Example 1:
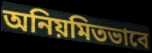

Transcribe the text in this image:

অনিয়মিতভাবে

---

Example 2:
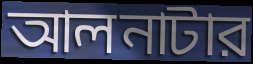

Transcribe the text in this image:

আলনাটার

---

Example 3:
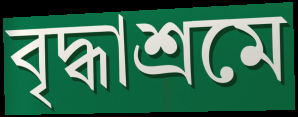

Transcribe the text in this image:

বৃদ্ধাশ্রমে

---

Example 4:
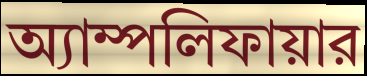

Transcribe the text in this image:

অ্যাম্পলিফায়ার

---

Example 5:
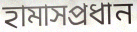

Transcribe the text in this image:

হামাসপ্রধান